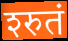
श्रुतं